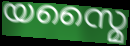
യസ്മൈ